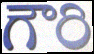
గౌరి